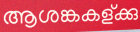
ആശങ്കകള്ക്കു